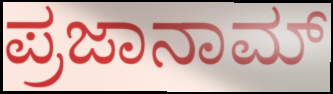
ಪ್ರಜಾನಾಮ್